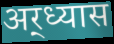
अर्ध्यास